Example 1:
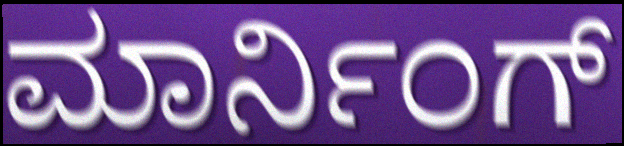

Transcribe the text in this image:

ಮಾರ್ನಿಂಗ್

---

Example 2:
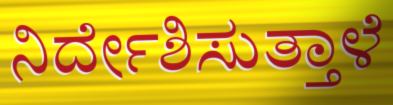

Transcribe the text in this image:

ನಿರ್ದೇಶಿಸುತ್ತಾಳೆ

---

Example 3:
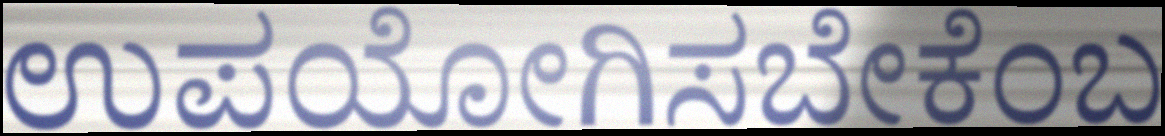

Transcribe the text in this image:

ಉಪಯೋಗಿಸಬೇಕೆಂಬ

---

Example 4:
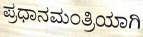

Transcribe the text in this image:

ಪ್ರಧಾನಮಂತ್ರಿಯಾಗಿ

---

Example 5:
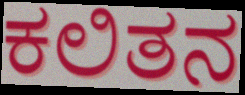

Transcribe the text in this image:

ಕಲಿತನ